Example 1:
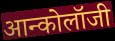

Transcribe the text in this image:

आन्कोलॉजी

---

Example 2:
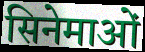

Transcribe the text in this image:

सिनेमाओं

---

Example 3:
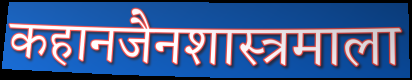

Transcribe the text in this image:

कहानजैनशास्त्रमाला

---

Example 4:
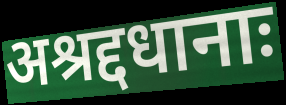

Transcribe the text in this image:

अश्रद्दधानाः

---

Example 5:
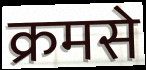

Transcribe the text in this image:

क्रमसे